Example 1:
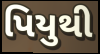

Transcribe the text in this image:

પિયુથી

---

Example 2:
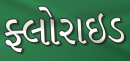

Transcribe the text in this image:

ફ્લોરાઇડ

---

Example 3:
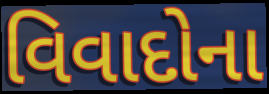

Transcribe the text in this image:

વિવાદોના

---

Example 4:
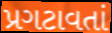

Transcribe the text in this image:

પ્રગટાવતાં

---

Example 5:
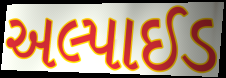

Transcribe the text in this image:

અલ્પાઈડ